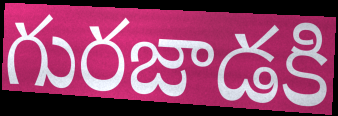
గురజాడకి